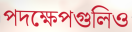
পদক্ষেপগুলিও